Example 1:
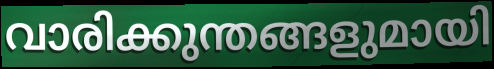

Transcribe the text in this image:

വാരിക്കുന്തങ്ങളുമായി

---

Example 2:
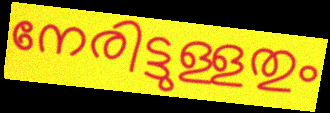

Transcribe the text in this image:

നേരിട്ടുള്ളതും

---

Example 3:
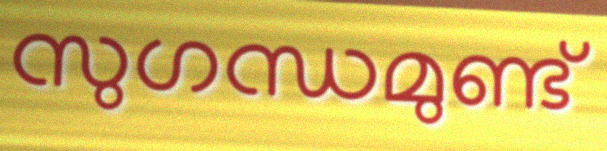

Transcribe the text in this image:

സുഗന്ധമുണ്ട്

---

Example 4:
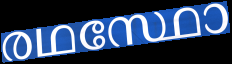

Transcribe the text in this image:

രഥസ്ഥോ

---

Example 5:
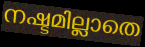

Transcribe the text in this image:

നഷ്ടമില്ലാതെ